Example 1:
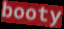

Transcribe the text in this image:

booty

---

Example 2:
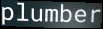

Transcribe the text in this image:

plumber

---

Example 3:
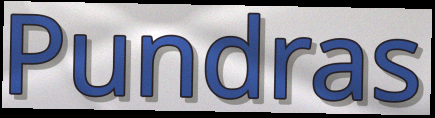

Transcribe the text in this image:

Pundras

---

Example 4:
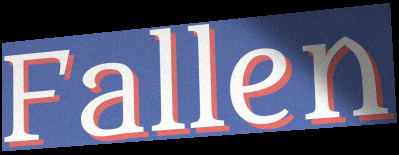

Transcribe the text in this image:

Fallen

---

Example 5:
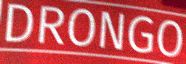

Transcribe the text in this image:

DRONGO